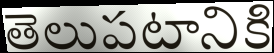
తెలుపటానికి